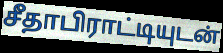
சீதாபிராட்டியுடன்